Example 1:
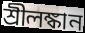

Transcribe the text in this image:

শ্রীলঙ্কান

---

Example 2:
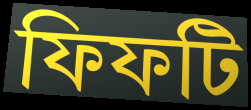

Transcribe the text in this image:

ফিফটি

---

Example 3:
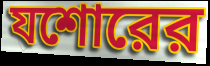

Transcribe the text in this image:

যশোরের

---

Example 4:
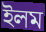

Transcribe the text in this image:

ইলম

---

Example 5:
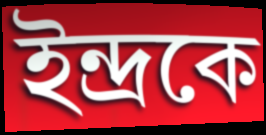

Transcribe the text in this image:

ইন্দ্রকে